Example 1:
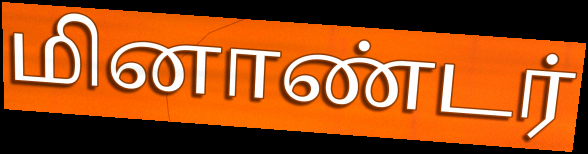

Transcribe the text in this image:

மினாண்டர்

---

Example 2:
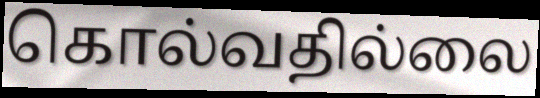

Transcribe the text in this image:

கொல்வதில்லை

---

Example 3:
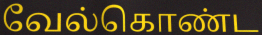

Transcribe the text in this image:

வேல்கொண்ட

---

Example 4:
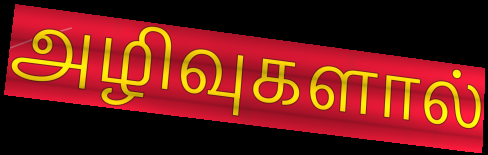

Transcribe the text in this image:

அழிவுகளால்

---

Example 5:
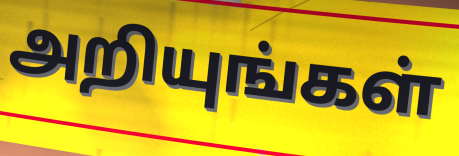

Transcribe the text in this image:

அறியுங்கள்